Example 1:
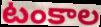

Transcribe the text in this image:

టంకాల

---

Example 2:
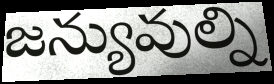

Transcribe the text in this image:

జన్యువుల్ని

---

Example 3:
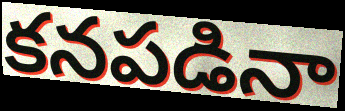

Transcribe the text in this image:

కనపడినా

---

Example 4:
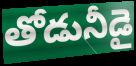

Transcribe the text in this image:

తోడునీడై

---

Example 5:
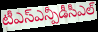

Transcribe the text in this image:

టీఎస్ఎన్పీడీసీఎల్